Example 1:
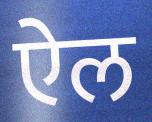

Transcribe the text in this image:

ऐल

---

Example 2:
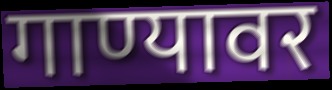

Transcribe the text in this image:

गाण्यावर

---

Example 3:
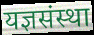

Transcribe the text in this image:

यज्ञसंस्था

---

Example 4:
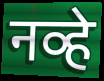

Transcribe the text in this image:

नव्हे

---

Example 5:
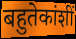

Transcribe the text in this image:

बहुतेकांशीं